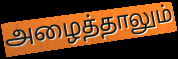
அழைத்தாலும்